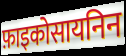
फ़ाइकोसायनिन